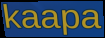
kaapa